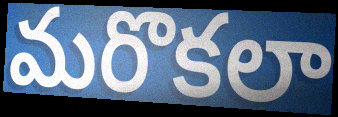
మరొకలా